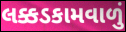
લક્કડકામવાળું